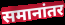
समानांतर